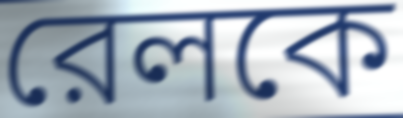
রেলকে